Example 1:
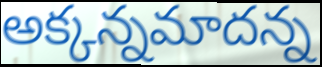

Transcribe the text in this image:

అక్కన్నమాదన్న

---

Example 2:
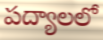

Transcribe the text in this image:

పద్యాలలో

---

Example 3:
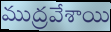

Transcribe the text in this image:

ముద్రవేశాయి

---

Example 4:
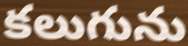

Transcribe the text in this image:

కలుగును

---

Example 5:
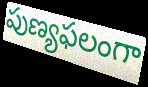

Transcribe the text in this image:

పుణ్యఫలంగా